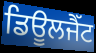
ਡਿਊਲਜੈੱਟ